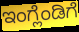
ಇಂಗ್ಲೆಂಡಿಗೆ